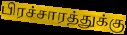
பிரச்சாரத்துக்கு